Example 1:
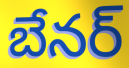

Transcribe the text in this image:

బేనర్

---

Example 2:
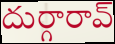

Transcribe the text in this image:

దుర్గారావ్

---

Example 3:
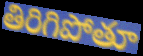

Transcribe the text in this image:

తిరిగిపోతూ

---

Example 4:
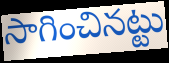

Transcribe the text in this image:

సాగించినట్టు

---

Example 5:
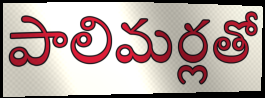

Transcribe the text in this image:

పాలిమర్లతో